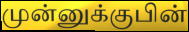
முன்னுக்குபின்